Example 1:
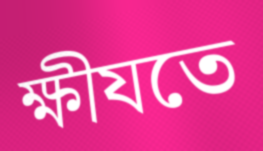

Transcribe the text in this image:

ক্ষীযতে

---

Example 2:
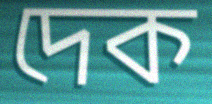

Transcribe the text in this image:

দেক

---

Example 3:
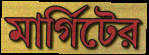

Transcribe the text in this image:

মার্গিটের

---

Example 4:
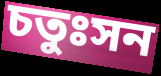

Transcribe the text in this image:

চতুঃসন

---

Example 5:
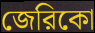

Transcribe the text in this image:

জেরিকো